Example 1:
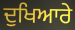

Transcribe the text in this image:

ਦੁਖਿਆਰੇ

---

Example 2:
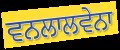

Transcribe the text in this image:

ਵਨਲਾਲਵੇਨਾ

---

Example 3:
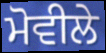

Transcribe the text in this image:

ਮੋਵੀਲੇ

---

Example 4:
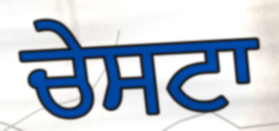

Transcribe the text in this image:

ਚੇਸਟਾ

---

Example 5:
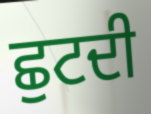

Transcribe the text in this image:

ਛੁਟਦੀ